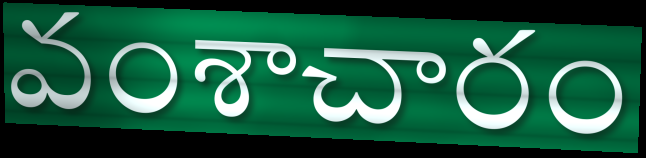
వంశాచారం